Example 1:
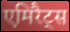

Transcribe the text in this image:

एमिरैट्स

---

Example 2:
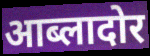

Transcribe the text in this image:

आब्लादोर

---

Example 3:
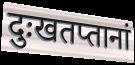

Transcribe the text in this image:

दुःखतप्तानां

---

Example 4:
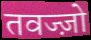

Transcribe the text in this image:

तवज्ज़ो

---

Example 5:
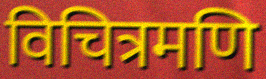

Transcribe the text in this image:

विचित्रमणि